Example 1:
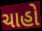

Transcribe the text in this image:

ચાહો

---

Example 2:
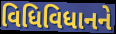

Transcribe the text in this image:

વિધિવિધાનને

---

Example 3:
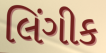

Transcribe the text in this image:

લિંગીક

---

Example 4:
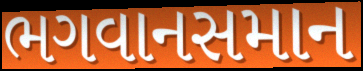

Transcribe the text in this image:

ભગવાનસમાન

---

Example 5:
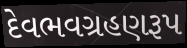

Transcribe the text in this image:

દેવભવગ્રહણરૂપ